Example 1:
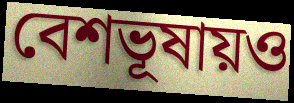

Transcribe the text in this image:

বেশভূষায়ও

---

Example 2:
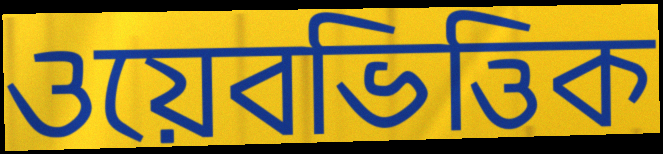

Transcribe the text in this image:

ওয়েবভিত্তিক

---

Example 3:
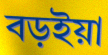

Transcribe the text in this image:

বড়ইয়া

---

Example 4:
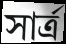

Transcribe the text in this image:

সার্ত্র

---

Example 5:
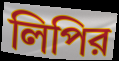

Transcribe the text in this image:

লিপির